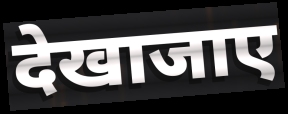
देखाजाए